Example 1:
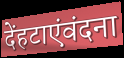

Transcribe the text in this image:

देंहटाएंवंदना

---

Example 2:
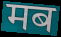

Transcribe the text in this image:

मब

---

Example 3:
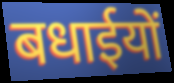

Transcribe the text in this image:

बधाईयों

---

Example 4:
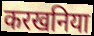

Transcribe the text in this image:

करखनिया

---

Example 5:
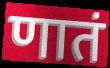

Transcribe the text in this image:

णातं